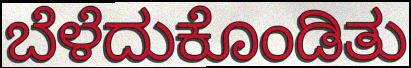
ಬೆಳೆದುಕೊಂಡಿತು